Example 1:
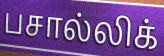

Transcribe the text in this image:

பசால்லிக்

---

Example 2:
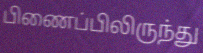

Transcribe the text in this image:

பிணைப்பிலிருந்து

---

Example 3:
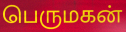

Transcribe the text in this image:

பெருமகன்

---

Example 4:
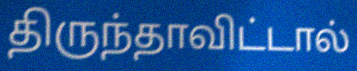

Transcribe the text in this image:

திருந்தாவிட்டால்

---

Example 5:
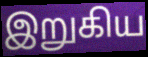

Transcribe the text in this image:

இறுகிய